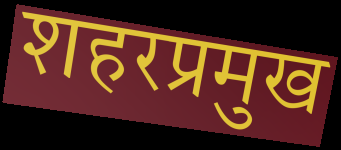
शहरप्रमुख